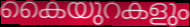
കൈയുറകളും